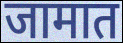
जामात